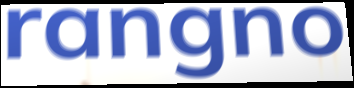
rangno